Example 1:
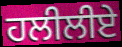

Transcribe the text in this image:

ਹਲੀਲੀਏ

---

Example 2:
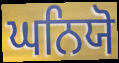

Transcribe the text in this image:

ਘਨਿਯੋ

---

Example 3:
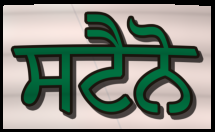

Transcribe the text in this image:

ਸਟੈਨੋ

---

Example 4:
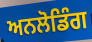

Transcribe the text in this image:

ਅਨਲੋਡਿੰਗ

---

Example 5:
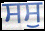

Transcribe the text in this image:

ਸਸੁ